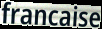
francaise